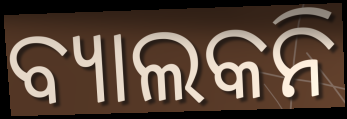
ବ୍ୟାଲକନି